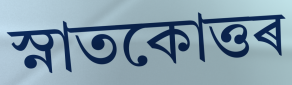
স্নাতকোত্তৰ